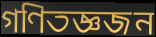
গণিতজ্ঞজন